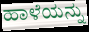
ಹಾಳೆಯನ್ನು